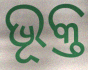
ଭୂକ୍ତ